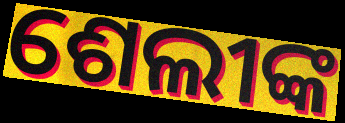
ଶେଲୀଙ୍କ